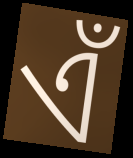
ଏଁ